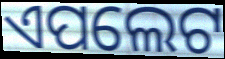
ଏପଲେଟ